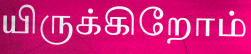
யிருக்கிறோம்